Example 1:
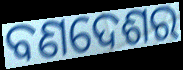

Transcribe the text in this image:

ବଣଦେଶର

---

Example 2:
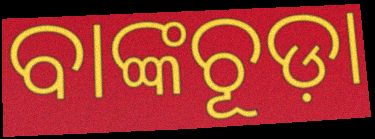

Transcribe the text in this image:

ବାଙ୍କଚୂଡ଼ା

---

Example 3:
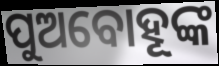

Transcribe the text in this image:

ପୁଅବୋହୂଙ୍କ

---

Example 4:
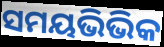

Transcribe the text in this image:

ସମୟଭିଭିକ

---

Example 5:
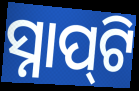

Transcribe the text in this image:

ସ୍ନାପ୍‍ଟି